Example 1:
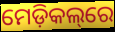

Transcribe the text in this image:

ମେଡ଼ିକଲ୍‌ରେ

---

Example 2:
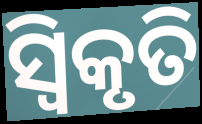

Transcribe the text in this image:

ସ୍ୱିକୃତି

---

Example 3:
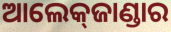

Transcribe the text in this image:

ଆଲେକ୍‌ଜାଣ୍ଡାର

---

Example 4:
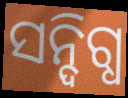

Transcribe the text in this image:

ସନ୍ଦିଗ୍ଧ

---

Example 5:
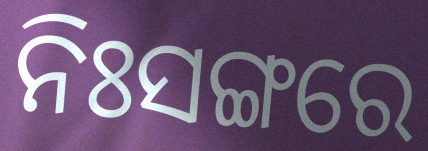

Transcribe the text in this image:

ନିଃସଙ୍ଗରେ